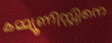
കമ്മ്യൂണിസ്റ്റിനെ